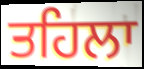
ਤਹਿਲਾ